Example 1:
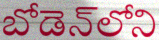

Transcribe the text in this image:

బోడెన్‌లోని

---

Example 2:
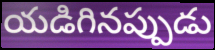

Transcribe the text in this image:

యడిగినప్పుడు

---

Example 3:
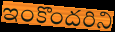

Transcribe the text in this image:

ఇంకొందరిని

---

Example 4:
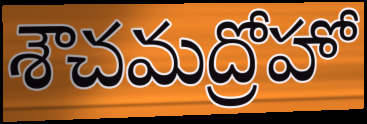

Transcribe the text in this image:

శౌచమద్రోహో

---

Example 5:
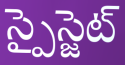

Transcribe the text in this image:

స్పైస్జెట్